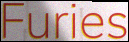
Furies